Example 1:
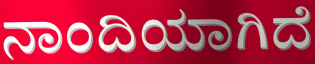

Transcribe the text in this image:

ನಾಂದಿಯಾಗಿದೆ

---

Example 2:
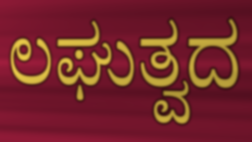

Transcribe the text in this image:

ಲಘುತ್ವದ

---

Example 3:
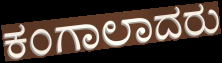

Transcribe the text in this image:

ಕಂಗಾಲಾದರು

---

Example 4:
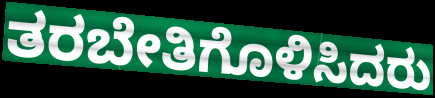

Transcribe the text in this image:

ತರಬೇತಿಗೊಳಿಸಿದರು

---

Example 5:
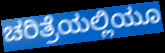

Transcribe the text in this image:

ಚರಿತ್ರೆಯಲ್ಲಿಯೂ